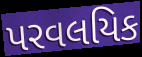
પરવલયિક